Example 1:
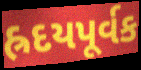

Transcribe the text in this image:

હ્રદયપૂર્વક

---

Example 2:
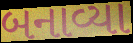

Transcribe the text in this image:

બનાવ્યા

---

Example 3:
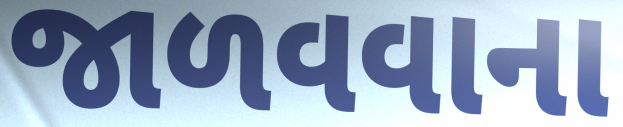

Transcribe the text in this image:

જાળવવાના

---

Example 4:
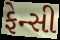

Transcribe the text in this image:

ફેન્સી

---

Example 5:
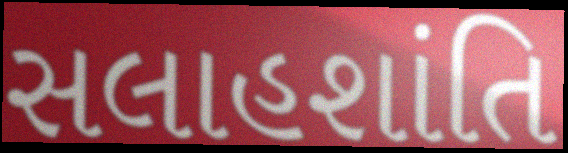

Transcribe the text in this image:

સલાહશાંતિ